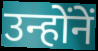
उन्‍होंनें